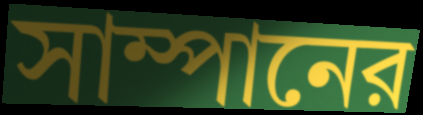
সাম্পানের